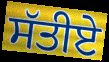
ਸੱਤੀਏ